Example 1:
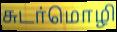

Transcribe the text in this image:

சுடர்மொழி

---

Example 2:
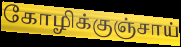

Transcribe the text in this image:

கோழிக்குஞ்சாய்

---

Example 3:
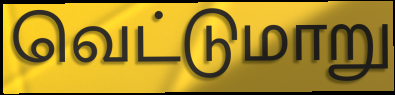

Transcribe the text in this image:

வெட்டுமாறு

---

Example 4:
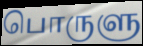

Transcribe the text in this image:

பொருளு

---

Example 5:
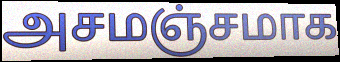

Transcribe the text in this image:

அசமஞ்சமாக